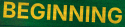
BEGINNING